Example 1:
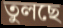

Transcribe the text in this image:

তুলছে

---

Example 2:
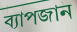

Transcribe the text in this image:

ব্যাপজান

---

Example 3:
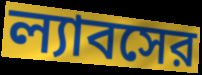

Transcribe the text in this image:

ল্যাবসের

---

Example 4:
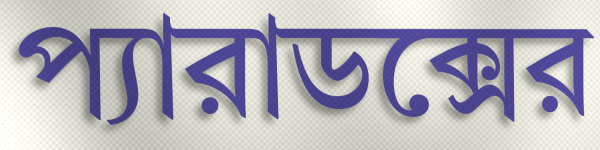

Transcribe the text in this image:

প্যারাডক্সের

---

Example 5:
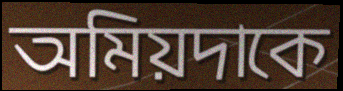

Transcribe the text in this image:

অমিয়দাকে